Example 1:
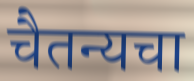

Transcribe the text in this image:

चैतन्यचा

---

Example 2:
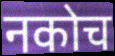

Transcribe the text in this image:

नकोच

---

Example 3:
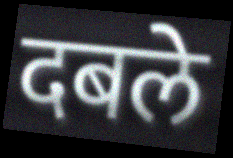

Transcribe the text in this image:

दबले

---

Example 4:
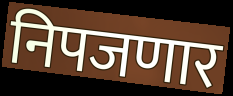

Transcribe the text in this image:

निपजणार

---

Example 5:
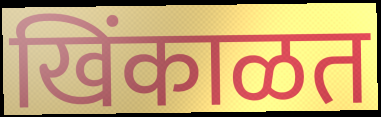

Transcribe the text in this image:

खिंकाळत